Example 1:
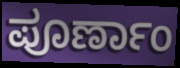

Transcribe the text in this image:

ಪೂರ್ಣಾಂ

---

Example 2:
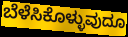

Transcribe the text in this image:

ಬೆಳೆಸಿಕೊಳ್ಳುವುದೂ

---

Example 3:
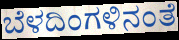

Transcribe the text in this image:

ಬೆಳದಿಂಗಳಿನಂತೆ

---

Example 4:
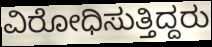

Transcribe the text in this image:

ವಿರೋಧಿಸುತ್ತಿದ್ದರು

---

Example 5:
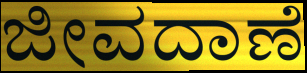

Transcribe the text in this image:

ಜೀವದಾಣೆ